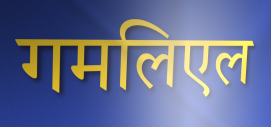
गमलिएल